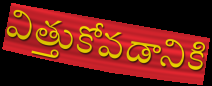
విత్తుకోవడానికి